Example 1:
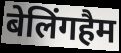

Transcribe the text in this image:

बेलिंगहैम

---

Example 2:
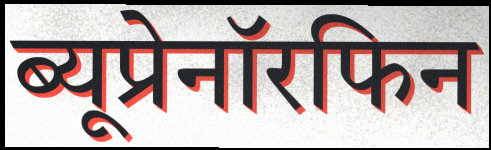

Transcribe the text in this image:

ब्यूप्रेनॉरफिन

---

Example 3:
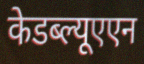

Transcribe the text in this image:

केडब्ल्यूएएन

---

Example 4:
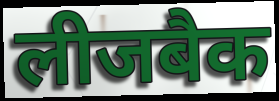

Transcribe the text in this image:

लीजबैक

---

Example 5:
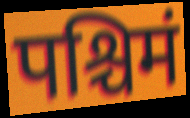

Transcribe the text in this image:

पश्चिमं